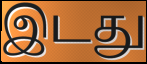
இடது